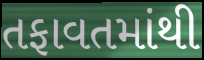
તફાવતમાંથી